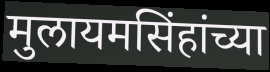
मुलायमसिंहांच्या